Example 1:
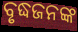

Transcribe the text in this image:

ବୃଦ୍ଧଜନଙ୍କ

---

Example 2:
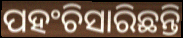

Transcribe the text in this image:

ପହଂଚିସାରିଛନ୍ତି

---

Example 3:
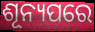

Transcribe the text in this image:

ଶୂନ୍ୟପରେ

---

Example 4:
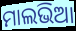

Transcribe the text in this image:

ମାଲଭିଆ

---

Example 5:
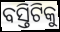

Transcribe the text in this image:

ବସ୍ତିଟିକୁ